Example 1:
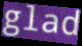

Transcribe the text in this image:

glad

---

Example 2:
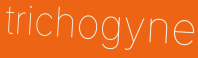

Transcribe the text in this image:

trichogyne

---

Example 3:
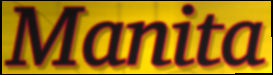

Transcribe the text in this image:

Manita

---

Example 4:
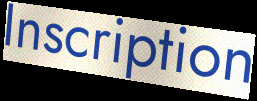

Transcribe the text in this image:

Inscription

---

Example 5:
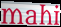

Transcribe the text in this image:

mahi